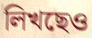
লিখছেও